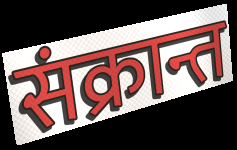
संक्रान्त